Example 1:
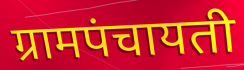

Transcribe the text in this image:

ग्रामपंचायती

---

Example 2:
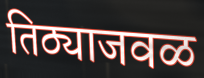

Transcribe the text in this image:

तिठ्याजवळ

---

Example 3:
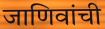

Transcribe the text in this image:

जाणिवांची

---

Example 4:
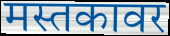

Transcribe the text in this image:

मस्तकावर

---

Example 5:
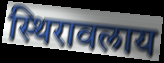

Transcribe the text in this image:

स्थिरावलाय